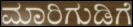
ಮಾರಿಗುಡಿಗೆ